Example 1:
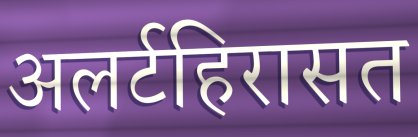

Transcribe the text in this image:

अलर्टहिरासत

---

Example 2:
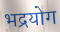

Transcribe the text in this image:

भद्रयोग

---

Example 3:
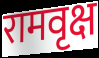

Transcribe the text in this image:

रामवृक्ष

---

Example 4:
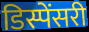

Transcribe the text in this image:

डिस्पेंसरी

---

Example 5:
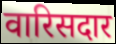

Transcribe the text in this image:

वारिसदार